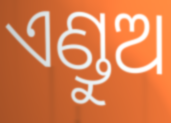
ଏଣ୍ଡୁଅ